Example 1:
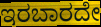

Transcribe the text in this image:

ಇರಬಾರದೇ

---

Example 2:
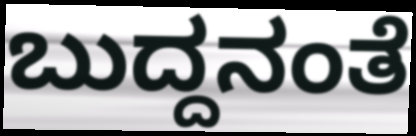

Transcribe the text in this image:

ಬುದ್ದನಂತೆ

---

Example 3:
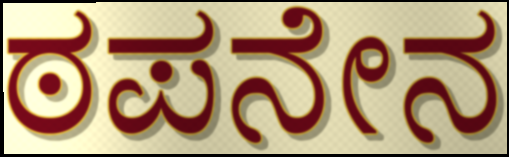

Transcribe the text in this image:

ಠಪನೇನ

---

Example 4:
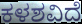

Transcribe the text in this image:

ಕಳಶವಿದೆ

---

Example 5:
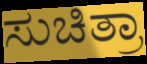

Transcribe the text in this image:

ಸುಚಿತ್ರಾ